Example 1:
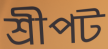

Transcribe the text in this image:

শ্রীপট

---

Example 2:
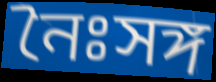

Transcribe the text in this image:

নৈঃসঙ্গ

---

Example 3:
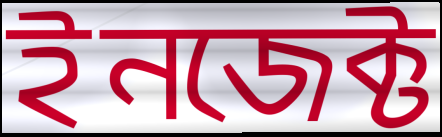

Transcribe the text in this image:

ইনজেক্ট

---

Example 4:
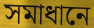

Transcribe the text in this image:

সমাধানে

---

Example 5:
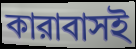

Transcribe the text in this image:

কারাবাসই